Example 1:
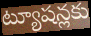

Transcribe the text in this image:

ట్యూషన్లకు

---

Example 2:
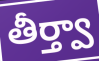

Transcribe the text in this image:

తీర్త్వా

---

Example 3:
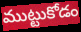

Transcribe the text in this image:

ముట్టుకోడం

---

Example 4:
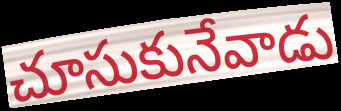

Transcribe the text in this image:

చూసుకునేవాడు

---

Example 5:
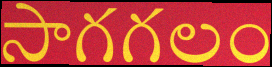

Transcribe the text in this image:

సాగగలం